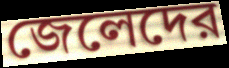
জেলেদের